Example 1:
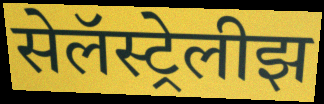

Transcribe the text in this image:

सेलॅस्ट्रेलीझ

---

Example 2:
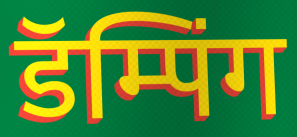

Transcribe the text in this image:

डॅम्पिंग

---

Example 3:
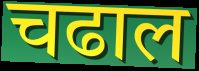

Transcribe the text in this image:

चढाल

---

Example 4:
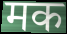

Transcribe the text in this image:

मक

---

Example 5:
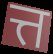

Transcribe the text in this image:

त्त